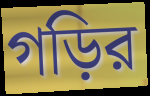
গড়ির